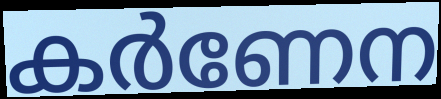
കർണേന